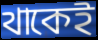
থাকেই